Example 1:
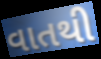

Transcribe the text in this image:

વાતથી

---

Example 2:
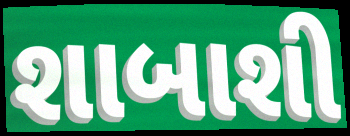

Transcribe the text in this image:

શાબાશી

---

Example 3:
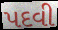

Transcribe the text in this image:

પદવી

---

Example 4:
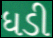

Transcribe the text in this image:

ધડી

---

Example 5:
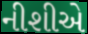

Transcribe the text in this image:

નીશીએ